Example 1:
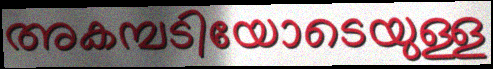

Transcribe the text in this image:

അകമ്പടിയോടെയുള്ള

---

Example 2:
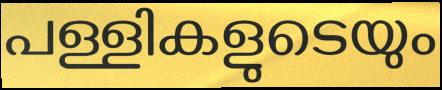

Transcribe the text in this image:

പള്ളികളുടെയും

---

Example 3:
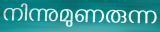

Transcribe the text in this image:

നിന്നുമുണരുന്ന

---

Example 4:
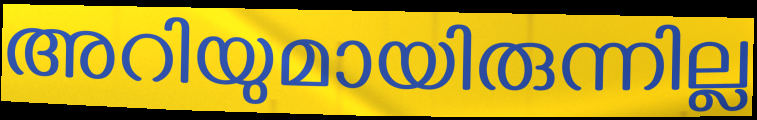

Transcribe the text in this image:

അറിയുമായിരുന്നില്ല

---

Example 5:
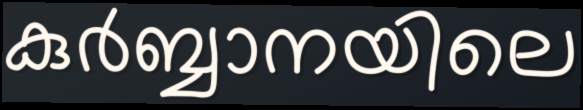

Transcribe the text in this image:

കുർബ്ബാനയിലെ